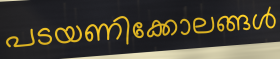
പടയണിക്കോലങ്ങൾ